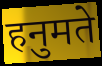
हनुमते